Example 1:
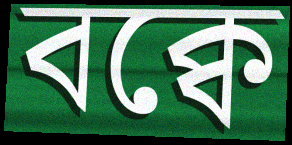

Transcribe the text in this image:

বক্বে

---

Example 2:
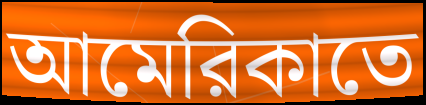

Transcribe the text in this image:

আমেরিকাতে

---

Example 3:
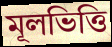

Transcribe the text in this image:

মূলভিত্তি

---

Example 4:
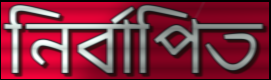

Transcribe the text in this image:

নির্বাপিত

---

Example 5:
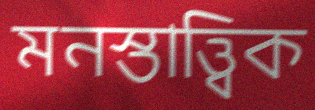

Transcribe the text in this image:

মনস্তাত্ত্বিক